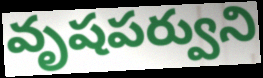
వృషపర్వుని